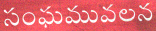
సంఘమువలన